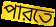
পারতে